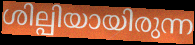
ശില്പിയായിരുന്ന